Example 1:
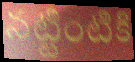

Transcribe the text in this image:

నట్టింటికి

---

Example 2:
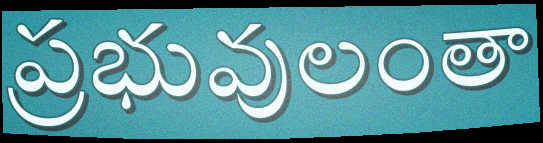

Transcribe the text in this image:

ప్రభువులంతా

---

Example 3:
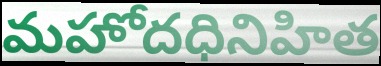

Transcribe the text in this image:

మహోదధినిహిత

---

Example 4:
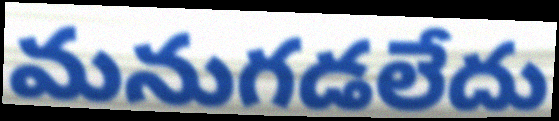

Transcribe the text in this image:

మనుగడలేదు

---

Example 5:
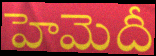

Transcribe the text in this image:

హెమెదీ